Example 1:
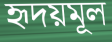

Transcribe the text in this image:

হৃদয়মূল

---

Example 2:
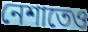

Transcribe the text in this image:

নেশাতেও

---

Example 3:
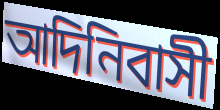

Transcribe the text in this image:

আদিনিবাসী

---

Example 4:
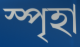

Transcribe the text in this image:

স্পৃহা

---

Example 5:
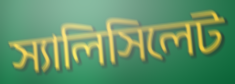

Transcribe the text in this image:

স্যালিসিলেট